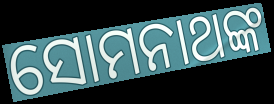
ସୋମନାଥଙ୍କ